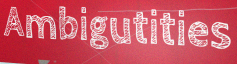
Ambigutities